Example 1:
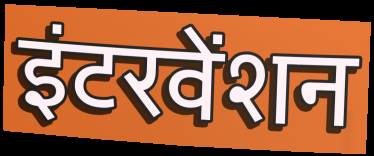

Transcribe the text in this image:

इंटरवेंशन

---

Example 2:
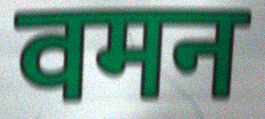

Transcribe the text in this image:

वमन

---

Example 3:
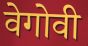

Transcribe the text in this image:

वेगोवी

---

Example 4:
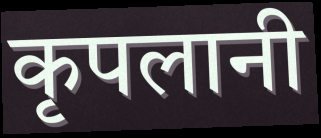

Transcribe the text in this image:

कृपलानी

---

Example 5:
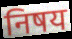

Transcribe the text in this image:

निषय